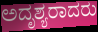
ಅದೃಶ್ಯರಾದರು